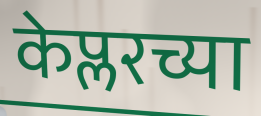
केप्लरच्या